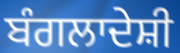
ਬੰਗਲਾਦੇਸ਼ੀ